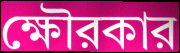
ক্ষৌরকার